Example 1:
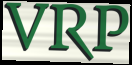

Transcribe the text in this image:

VRP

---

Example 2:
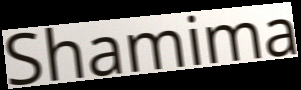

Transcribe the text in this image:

Shamima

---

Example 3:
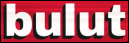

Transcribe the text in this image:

bulut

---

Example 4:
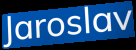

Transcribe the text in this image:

Jaroslav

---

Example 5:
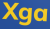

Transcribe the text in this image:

Xga